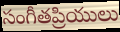
సంగీతప్రియులు